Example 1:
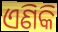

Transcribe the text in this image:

ଏଣିକି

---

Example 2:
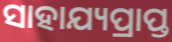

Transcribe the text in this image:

ସାହାଯ୍ୟପ୍ରାପ୍ତ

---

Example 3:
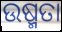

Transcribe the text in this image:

ଉଷ୍ମତା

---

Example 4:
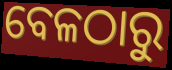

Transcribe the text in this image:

ବେଳଠାରୁ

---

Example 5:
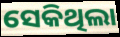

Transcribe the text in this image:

ସେକିଥିଲା